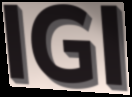
IGI